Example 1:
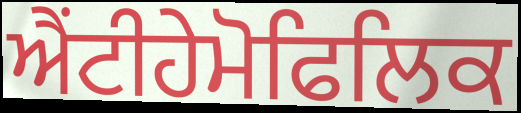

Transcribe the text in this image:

ਐਂਟੀਹੇਮੋਫਿਲਿਕ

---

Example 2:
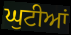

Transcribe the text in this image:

ਘੁਟੀਆਂ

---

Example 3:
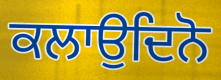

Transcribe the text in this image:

ਕਲਾਉਦਿਨੋ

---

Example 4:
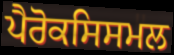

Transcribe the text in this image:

ਪੈਰੋਕਸਿਸਮਲ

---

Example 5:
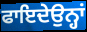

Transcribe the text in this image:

ਫਾਇਦੇਉਨ੍ਹਾਂ